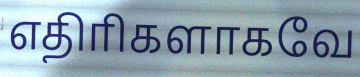
எதிரிகளாகவே